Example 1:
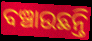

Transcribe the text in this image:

ବଞ୍ଚାଉଛନ୍ତି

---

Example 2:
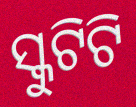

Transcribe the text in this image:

ସ୍କୁଟିଟି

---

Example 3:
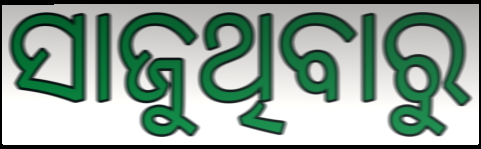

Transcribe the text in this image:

ସାଜୁଥିବାରୁ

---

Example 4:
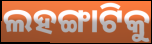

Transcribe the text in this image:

ଲହଙ୍ଗାଟିକୁ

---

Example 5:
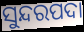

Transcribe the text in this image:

ସୁନ୍ଦରପଦା